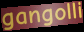
gangolli